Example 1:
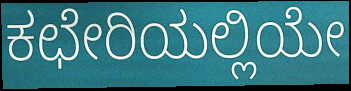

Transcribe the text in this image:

ಕಛೇರಿಯಲ್ಲಿಯೇ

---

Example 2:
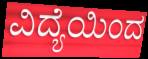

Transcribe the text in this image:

ವಿದ್ಯೆಯಿಂದ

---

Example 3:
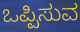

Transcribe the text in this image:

ಒಪ್ಪಿಸುವ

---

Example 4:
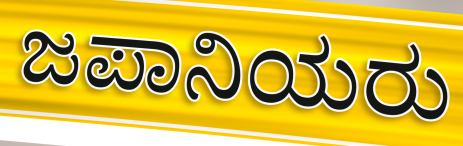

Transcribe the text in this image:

ಜಪಾನಿಯರು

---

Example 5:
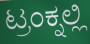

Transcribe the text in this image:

ಟ್ರಂಕ್ನಲ್ಲಿ